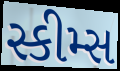
સ્કીમ્સ